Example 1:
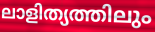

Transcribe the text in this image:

ലാളിത്യത്തിലും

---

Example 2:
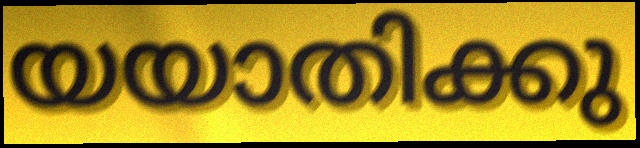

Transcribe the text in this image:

യയാതിക്കു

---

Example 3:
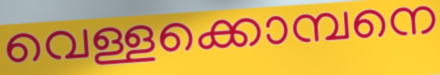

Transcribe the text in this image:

വെള്ളക്കൊമ്പനെ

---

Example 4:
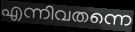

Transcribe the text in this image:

എന്നിവതന്നെ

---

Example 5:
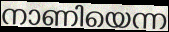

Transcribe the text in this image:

നാണിയെന്ന